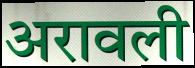
अरावली